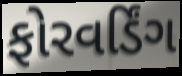
ફોરવર્ડિંગ